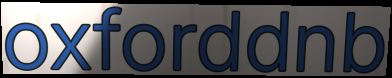
oxforddnb